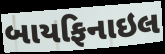
બાયફિનાઇલ